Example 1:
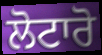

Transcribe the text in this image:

ਲੋਟਾਰੋ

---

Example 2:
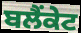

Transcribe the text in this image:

ਬਲੈਂਕੇਟ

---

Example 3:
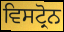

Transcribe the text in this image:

ਵਿਸਟ੍ਰੋਨ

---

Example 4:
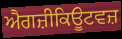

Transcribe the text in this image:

ਐਗਜ਼ੀਕਿਊਟਵਜ਼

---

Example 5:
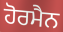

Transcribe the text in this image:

ਹੋਰਮੈਨ